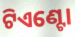
ଟିଏଣ୍ଟୋ